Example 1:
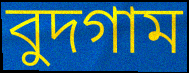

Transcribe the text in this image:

বুদগাম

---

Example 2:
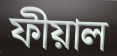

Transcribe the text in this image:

ফীয়াল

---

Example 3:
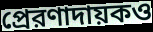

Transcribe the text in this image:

প্রেরণাদায়কও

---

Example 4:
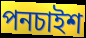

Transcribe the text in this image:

পনচাইশ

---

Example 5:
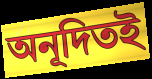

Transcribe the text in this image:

অনূদিতই